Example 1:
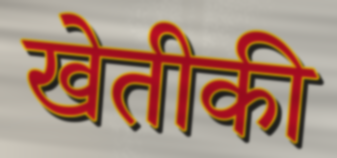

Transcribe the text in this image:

खेतीकी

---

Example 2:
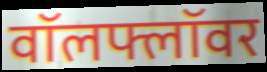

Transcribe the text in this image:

वॉलफ्लॉवर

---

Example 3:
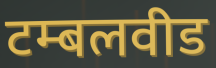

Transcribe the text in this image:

टम्बलवीड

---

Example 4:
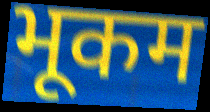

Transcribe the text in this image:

भूकम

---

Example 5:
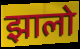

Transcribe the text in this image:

झालो